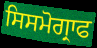
ਸਿਸਮੋਗ੍ਰਾਫ